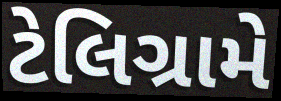
ટેલિગ્રામે